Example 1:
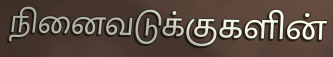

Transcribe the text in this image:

நினைவடுக்குகளின்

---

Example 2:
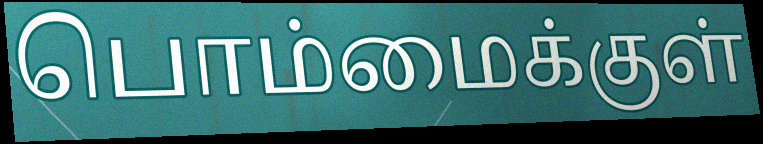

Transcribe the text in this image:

பொம்மைக்குள்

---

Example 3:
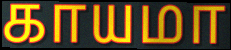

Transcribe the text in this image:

காயமா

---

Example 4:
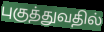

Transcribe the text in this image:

புகுத்துவதில்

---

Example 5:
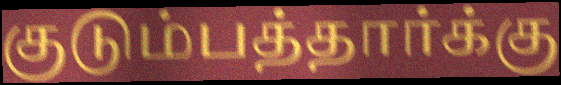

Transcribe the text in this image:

குடும்பத்தார்க்கு